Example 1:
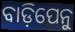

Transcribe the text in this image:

ବାଡ଼ିପେନୁ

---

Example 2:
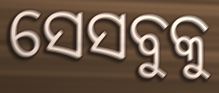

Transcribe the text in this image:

ସେସବୁକୁ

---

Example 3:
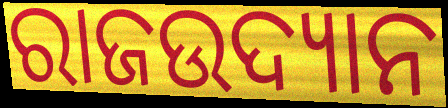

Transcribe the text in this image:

ରାଜଉଦ୍ୟାନ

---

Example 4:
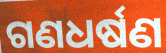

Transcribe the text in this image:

ଗଣଧର୍ଷଣ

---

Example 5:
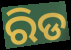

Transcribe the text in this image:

ରିଡ